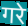
गरे